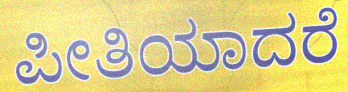
ಪೀತಿಯಾದರೆ